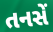
તનસેં